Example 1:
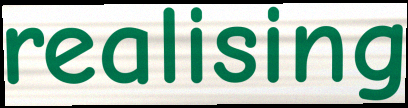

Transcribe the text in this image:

realising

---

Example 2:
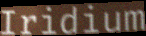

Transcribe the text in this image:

Iridium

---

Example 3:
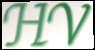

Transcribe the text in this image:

HV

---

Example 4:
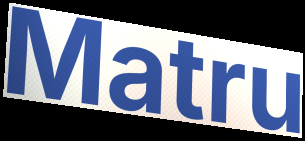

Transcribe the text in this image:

Matru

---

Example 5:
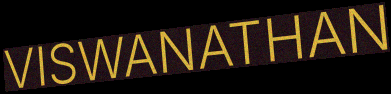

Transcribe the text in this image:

VISWANATHAN